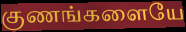
குணங்களையே